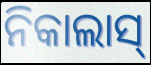
ନିକାଲାସ୍